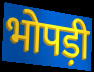
भोपड़ी